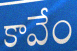
కావేం